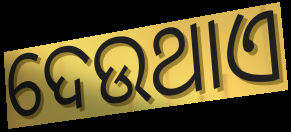
ଦେଉଥାଏ